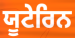
ਯੂਟੇਰਿਨ